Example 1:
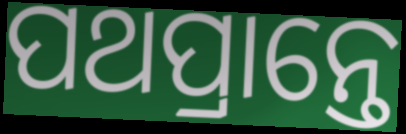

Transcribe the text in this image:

ପଥପ୍ରାନ୍ତେ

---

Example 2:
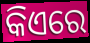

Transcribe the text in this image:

କିଏରେ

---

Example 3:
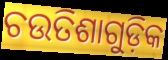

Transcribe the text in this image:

ଚଉତିଶାଗୁଡ଼ିକ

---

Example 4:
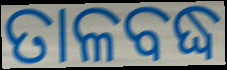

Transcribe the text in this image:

ତାଳବଦ୍ଧ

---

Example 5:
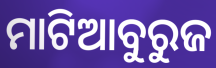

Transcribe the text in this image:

ମାଟିଆବୁରୁଜ